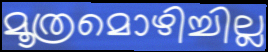
മൂത്രമൊഴിച്ചില്ല